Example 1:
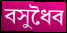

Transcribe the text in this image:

বসুধৈব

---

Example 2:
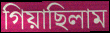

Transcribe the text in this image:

গিয়াছিলাম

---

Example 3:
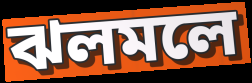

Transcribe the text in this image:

ঝলমলে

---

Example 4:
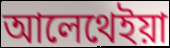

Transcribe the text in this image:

আলেথেইয়া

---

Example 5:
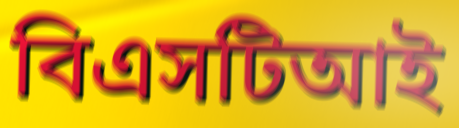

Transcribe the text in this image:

বিএসটিআই